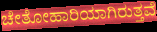
ಚೇತೋಹಾರಿಯಾಗಿರುತ್ತವೆ